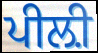
ਪੀਲ਼ੀ